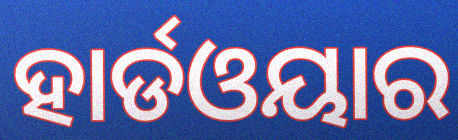
ହାର୍ଡଓୟାର